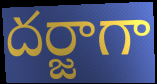
దర్జాగా